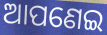
ଆପଣେଇ